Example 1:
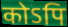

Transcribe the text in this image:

कोऽपि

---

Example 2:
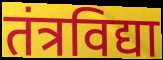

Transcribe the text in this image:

तंत्रविद्या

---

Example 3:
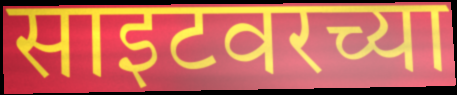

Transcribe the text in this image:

साइटवरच्या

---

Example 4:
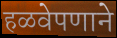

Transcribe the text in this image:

हळवेपणाने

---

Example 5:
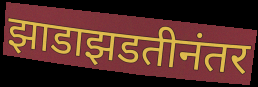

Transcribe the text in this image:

झाडाझडतीनंतर